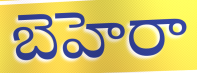
బెహెరా